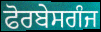
ਫੋਰਬੇਸਗੰਜ